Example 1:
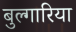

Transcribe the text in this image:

बुल्गारिया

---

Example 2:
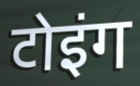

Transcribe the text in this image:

टोइंग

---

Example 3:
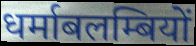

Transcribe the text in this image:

धर्माबलम्बियों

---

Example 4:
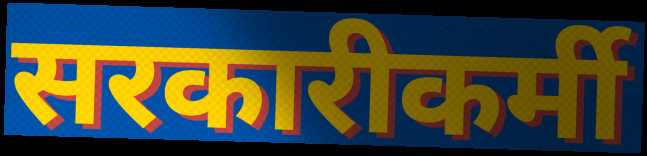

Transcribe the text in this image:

सरकारीकर्मी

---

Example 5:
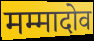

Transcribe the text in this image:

मम्मादोव